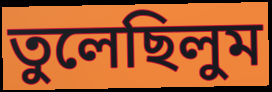
তুলেছিলুম